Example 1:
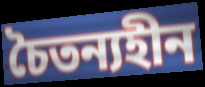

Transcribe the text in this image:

চৈতন্যহীন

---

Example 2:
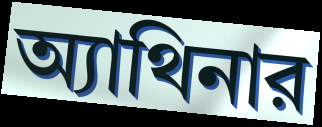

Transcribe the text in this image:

অ্যাথিনার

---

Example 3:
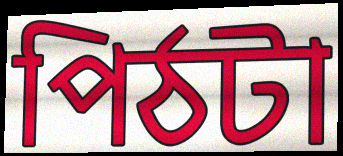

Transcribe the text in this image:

পিঠটা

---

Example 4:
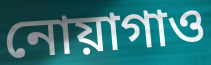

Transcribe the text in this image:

নোয়াগাও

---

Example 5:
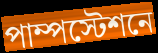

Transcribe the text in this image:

পাম্পস্টেশনে